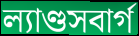
ল্যাণ্ডসবার্গ